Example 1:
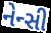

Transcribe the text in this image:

નેન્સી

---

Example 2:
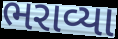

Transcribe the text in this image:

ભરાવ્યા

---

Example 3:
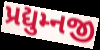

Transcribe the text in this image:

પ્રદ્યુમ્નજી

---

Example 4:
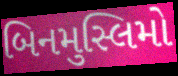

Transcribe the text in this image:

બિનમુસ્લિમો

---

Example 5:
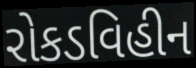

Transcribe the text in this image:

રોકડવિહીન